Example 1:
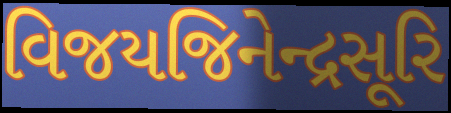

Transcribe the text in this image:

વિજયજિનેન્દ્રસૂરિ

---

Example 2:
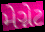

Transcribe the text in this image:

મેગ્નેટ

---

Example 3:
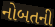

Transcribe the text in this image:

નોબતની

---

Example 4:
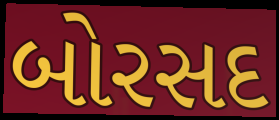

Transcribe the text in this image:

બોરસદ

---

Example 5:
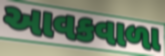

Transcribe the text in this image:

આવકવાળા